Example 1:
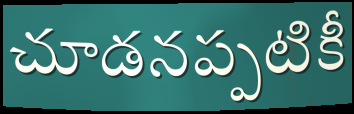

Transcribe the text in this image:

చూడనప్పటికీ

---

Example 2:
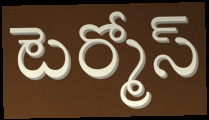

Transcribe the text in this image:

టెర్మోస్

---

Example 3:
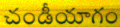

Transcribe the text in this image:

చండీయాగం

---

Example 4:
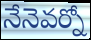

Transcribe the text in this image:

నేనెవర్నో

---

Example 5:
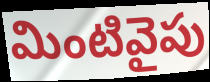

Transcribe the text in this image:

మింటివైపు